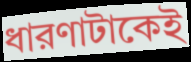
ধারণাটাকেই